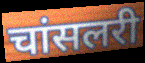
चांसलरी